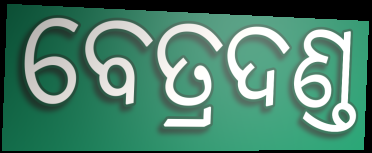
ବେତ୍ରଦଣ୍ଡ